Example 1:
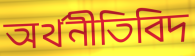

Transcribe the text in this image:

অর্থনীতিবিদ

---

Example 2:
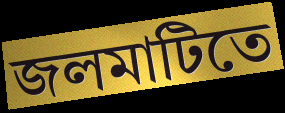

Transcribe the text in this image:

জলমাটিতে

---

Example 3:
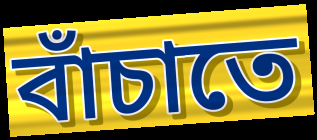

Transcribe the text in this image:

বাঁচাতে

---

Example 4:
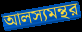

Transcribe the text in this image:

আলস্যমন্থর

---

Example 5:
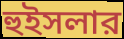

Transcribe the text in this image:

হুইসলার